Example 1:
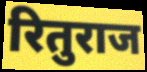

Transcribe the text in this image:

रितुराज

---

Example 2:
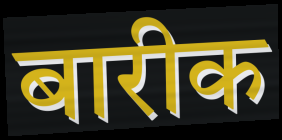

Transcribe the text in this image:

बारीक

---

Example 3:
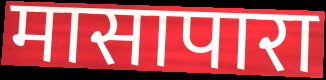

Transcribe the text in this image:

मासापारा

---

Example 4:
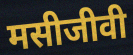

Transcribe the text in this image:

मसीजीवी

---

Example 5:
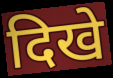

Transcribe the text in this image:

दिखे